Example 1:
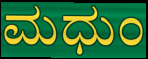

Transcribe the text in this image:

ಮಧುಂ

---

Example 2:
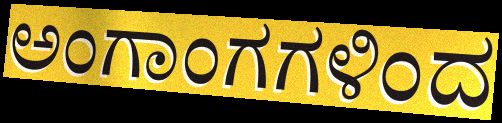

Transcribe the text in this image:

ಅಂಗಾಂಗಗಳಿಂದ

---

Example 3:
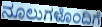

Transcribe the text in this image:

ನೂಲುಗಳೊಂದಿಗೆ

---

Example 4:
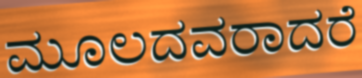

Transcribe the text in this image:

ಮೂಲದವರಾದರೆ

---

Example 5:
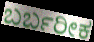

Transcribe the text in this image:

ಬರ್ಬರೀಕ